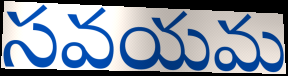
సవయమ